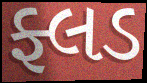
ફ્લડ